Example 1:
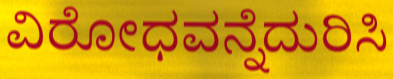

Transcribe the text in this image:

ವಿರೋಧವನ್ನೆದುರಿಸಿ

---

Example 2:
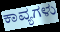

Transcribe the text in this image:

ಕಾವ್ಯಗಳು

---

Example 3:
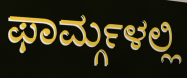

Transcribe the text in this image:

ಫಾರ್ಮ್ಗಳಲ್ಲಿ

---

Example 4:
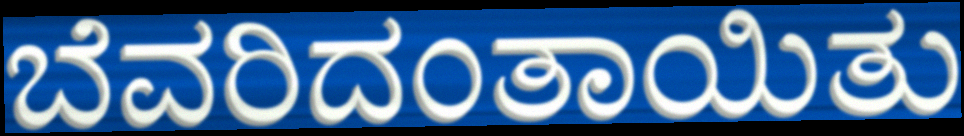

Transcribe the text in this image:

ಬೆವರಿದಂತಾಯಿತು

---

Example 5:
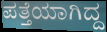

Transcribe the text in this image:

ಪತ್ತೆಯಾಗಿದ್ದ